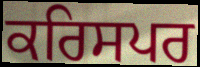
ਕਰਿਸਪਰ